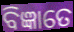
ବିଜ୍ଞାତେ